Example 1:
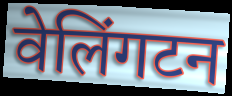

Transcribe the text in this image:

वेलिंगटन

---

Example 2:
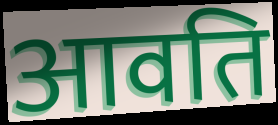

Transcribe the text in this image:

आवति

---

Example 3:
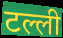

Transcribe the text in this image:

टल्ली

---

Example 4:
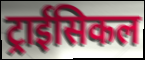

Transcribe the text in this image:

ट्राईसिकल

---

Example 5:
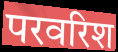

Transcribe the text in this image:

परवरिश